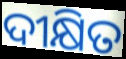
ଦୀକ୍ଷିତ